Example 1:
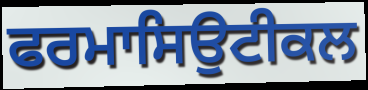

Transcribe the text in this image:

ਫਰਮਾਸਿਉਟੀਕਲ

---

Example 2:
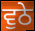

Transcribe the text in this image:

ਵੁਠੇ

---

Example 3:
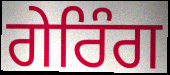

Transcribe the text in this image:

ਗੇਰਿੰਗ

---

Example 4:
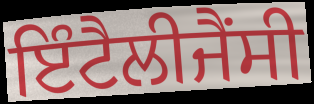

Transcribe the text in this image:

ਇੰਟੈਲੀਜੈਂਸੀ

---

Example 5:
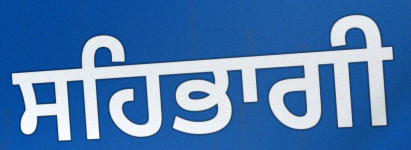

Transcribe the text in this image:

ਸਹਿਭਾਗੀ